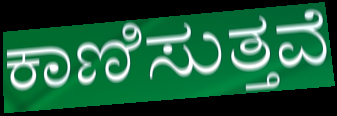
ಕಾಣಿಸುತ್ತವೆ